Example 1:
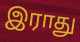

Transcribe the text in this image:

இராது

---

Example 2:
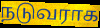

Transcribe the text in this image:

நடுவராக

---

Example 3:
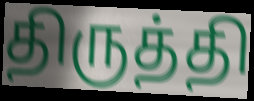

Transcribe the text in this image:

திருத்தி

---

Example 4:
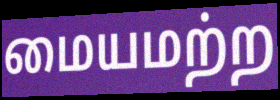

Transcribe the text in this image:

மையமற்ற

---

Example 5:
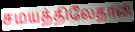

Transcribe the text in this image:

சமயத்திலேதான்